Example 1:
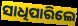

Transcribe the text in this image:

ସାଧିପାରିଲେ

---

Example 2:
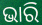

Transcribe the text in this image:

ଭାରି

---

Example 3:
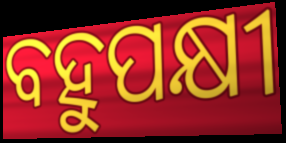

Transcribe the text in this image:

ବହୁପକ୍ଷୀ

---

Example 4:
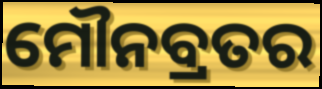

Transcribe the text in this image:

ମୌନବ୍ରତର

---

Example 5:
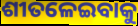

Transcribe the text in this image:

ଶୀତଳେଇବାକୁ